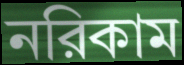
নরিকাম